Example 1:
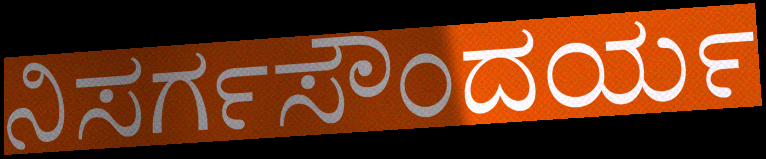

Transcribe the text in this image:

ನಿಸರ್ಗಸೌಂದರ್ಯ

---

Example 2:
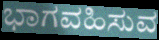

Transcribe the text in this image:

ಭಾಗವಹಿಸುವ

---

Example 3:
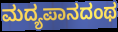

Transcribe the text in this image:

ಮದ್ಯಪಾನದಂಥ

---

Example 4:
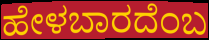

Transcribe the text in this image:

ಹೇಳಬಾರದೆಂಬ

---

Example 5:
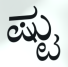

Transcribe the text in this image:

ಷ್ಟು